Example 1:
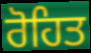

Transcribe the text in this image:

ਰੋਹਿਤ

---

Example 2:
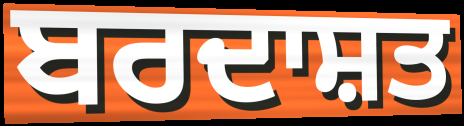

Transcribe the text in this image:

ਬਰਦਾਸ਼ਤ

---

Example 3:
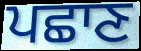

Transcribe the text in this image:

ਪਛਾਣ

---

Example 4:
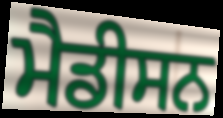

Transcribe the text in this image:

ਮੈਡੀਸਨ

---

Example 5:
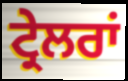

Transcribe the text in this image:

ਟ੍ਰੇਲਰਾਂ